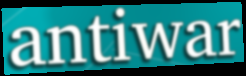
antiwar